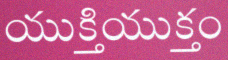
యుక్తియుక్తం